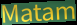
Matam